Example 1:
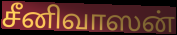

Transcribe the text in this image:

சீனிவாஸன்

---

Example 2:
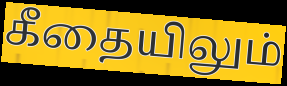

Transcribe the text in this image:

கீதையிலும்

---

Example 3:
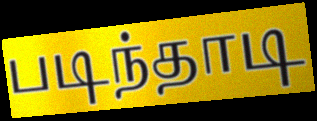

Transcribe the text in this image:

படிந்தாடி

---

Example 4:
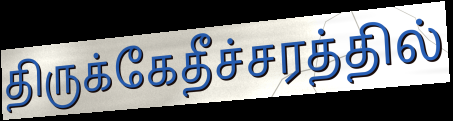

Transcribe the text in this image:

திருக்கேதீச்சரத்தில்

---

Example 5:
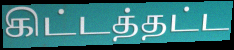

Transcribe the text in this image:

கிட்டத்தட்ட